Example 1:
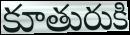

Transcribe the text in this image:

కూతురుకి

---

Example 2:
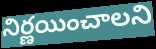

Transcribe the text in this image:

నిర్ణయించాలని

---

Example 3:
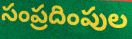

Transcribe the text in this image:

సంప్రదింపుల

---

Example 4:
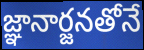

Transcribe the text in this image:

జ్ఞానార్జనతోనే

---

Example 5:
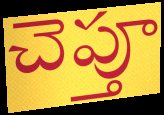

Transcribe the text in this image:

చెప్తూ